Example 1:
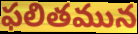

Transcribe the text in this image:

ఫలితమున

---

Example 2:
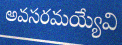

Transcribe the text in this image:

అవసరమయ్యేవి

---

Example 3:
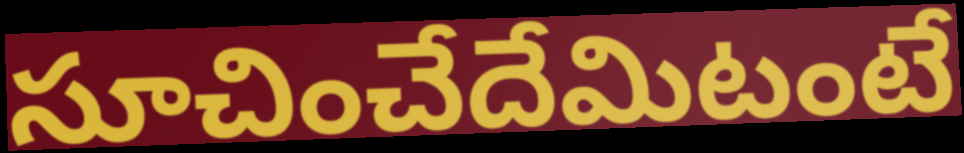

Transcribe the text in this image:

సూచించేదేమిటంటే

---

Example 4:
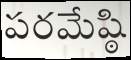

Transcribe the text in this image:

పరమేష్ఠి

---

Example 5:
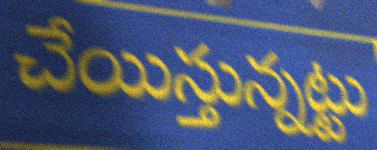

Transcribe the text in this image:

చేయిస్తున్నట్టు